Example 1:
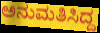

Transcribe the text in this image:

ಅನುಮತಿಸಿದ್ದ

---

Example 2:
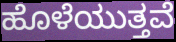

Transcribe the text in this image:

ಹೊಳೆಯುತ್ತವೆ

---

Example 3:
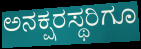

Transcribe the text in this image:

ಅನಕ್ಷರಸ್ಥರಿಗೂ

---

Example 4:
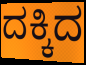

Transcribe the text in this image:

ದಕ್ಕಿದ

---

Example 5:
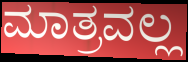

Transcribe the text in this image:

ಮಾತ್ರವಲ್ಲ